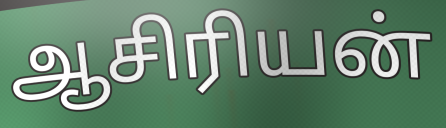
ஆசிரியன்